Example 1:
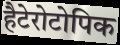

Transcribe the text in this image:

हैटेरोटोपिक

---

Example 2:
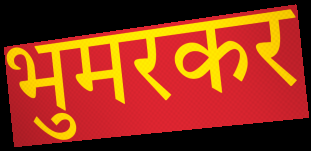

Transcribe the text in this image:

भुमरकर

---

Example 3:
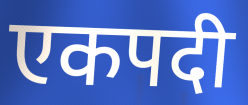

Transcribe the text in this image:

एकपदी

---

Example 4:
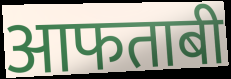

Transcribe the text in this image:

आफताबी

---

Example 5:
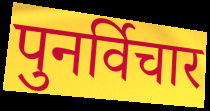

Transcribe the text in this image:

पुनर्विचार